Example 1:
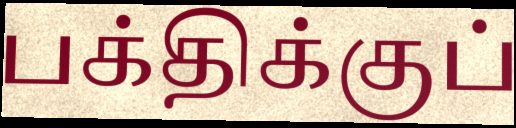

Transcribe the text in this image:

பக்திக்குப்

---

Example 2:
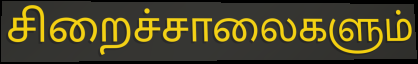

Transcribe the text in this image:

சிறைச்சாலைகளும்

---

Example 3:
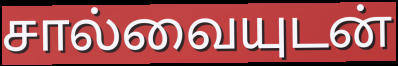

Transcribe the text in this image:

சால்வையுடன்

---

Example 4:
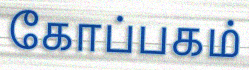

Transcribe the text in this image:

கோப்பகம்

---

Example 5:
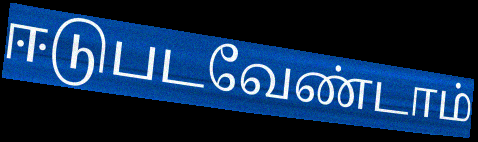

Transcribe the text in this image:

ஈடுபடவேண்டாம்